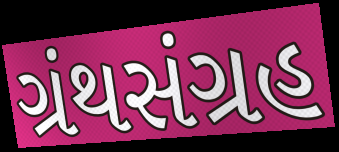
ગ્રંથસંગ્રહ